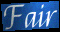
Fair